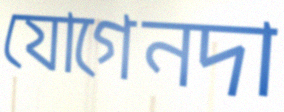
যোগেনদা